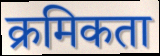
क्रमिकता